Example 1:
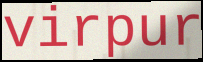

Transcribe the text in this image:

virpur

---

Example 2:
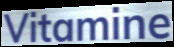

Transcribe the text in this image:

Vitamine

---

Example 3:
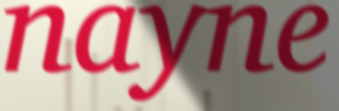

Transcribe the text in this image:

nayne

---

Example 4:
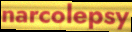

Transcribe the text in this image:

narcolepsy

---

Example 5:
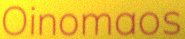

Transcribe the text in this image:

Oinomaos